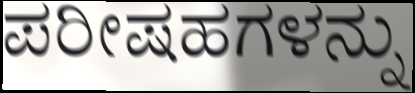
ಪರೀಷಹಗಳನ್ನು